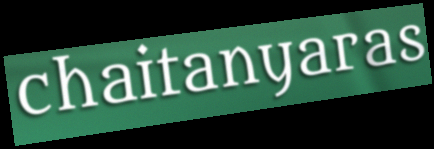
chaitanyaras